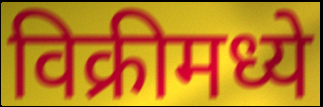
विक्रीमध्ये